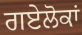
ਗਏਲੋਕਾਂ